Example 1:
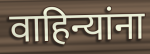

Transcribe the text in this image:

वाहिन्यांना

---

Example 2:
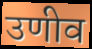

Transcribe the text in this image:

उणीव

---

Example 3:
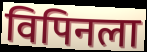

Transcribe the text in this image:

विपिनला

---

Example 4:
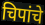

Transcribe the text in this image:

चिपांचे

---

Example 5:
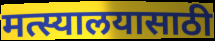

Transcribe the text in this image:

मत्स्यालयासाठी